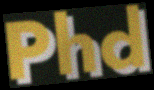
Phd